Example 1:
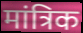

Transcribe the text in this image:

मांत्रिक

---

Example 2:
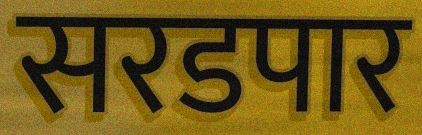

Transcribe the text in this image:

सरडपार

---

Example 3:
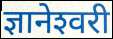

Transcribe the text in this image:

ज्ञानेश्‍वरी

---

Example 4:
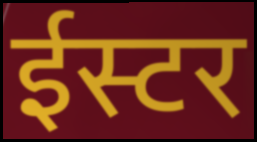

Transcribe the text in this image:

ईस्टर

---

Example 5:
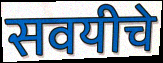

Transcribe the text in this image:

सवयीचे